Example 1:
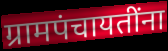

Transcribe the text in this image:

ग्रामपंचायतींना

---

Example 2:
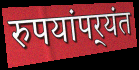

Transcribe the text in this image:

रुपयांपर्यंत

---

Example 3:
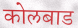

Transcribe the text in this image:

कोलबाड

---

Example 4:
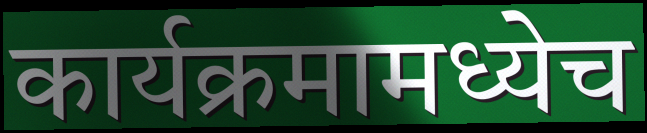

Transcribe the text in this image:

कार्यक्रमामध्येच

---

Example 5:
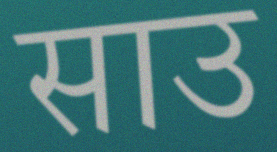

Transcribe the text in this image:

साउ